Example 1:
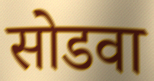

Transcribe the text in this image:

सोडवा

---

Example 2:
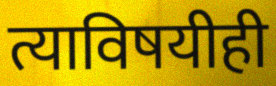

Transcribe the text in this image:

त्याविषयीही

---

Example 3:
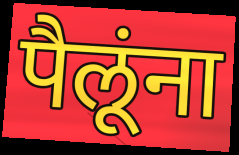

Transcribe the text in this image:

पैलूंना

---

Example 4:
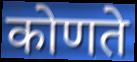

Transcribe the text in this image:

कोणते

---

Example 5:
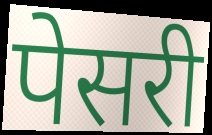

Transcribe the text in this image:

पेसरी